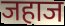
जहाज